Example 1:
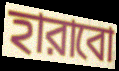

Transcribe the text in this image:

হারাবো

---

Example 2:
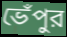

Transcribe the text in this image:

ভেঁপুর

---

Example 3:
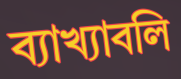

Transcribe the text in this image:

ব্যাখ্যাবলি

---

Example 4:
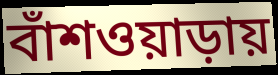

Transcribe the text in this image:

বাঁশওয়াড়ায়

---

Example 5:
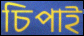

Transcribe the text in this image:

চিপাই